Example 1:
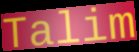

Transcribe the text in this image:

Talim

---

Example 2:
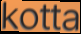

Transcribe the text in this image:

kotta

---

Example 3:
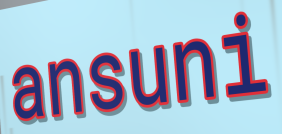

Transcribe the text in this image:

ansuni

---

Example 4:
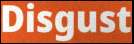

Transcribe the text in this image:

Disgust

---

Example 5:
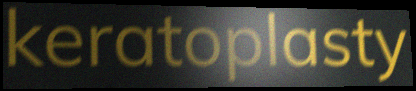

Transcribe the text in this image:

keratoplasty